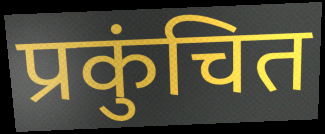
प्रकुंचित